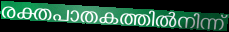
രക്തപാതകത്തിൽനിന്ന്